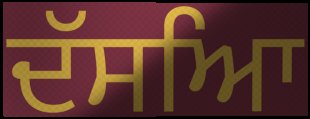
ਦੱਸਆਿ